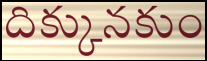
దిక్కునకుం